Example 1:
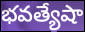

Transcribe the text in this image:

భవత్యేషా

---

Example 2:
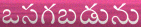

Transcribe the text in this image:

ఒసగబడును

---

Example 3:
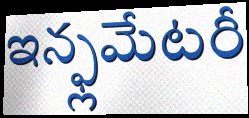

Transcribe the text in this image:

ఇన్ఫ్లమేటరీ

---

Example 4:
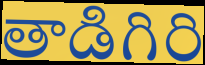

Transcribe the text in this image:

తాడిగిరి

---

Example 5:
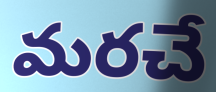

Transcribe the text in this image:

మరచే